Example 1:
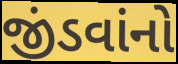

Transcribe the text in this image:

જીંડવાંનો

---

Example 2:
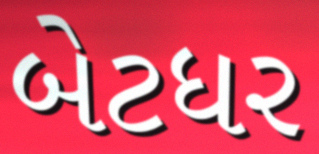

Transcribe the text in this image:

બેટધર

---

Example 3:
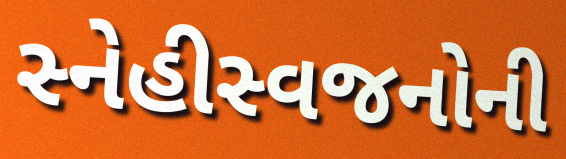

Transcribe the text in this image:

સ્નેહીસ્વજનોની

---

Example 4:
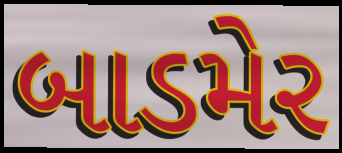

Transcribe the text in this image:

બાડમેર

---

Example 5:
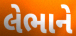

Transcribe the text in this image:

લેભાને